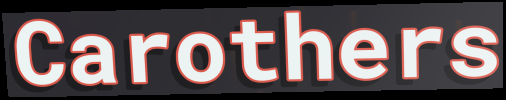
Carothers